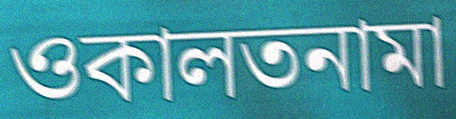
ওকালতনামা